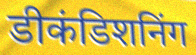
डीकंडिशनिंग